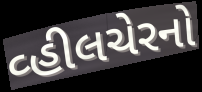
વ્હીલચેરનો